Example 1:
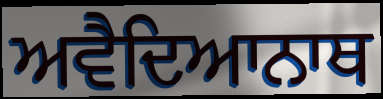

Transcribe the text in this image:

ਅਵੈਦਿਆਨਾਥ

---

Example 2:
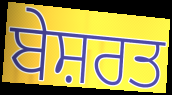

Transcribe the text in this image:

ਬੇਸ਼ਰਤ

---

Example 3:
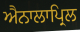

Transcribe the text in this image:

ਐਨਾਲਾਪ੍ਰਿਲ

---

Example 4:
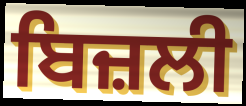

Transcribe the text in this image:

ਬਿਜ਼ਲੀ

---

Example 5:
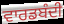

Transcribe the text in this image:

ਵਾਰਡਬੰਦੀ